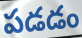
పడడం